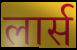
लार्स